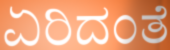
ಏರಿದಂತೆ